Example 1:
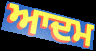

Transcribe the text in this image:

ਆਦਮ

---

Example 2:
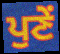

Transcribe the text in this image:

ਪੁਣੇਂ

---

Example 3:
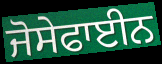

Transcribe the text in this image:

ਜੋਸੇਫਾਈਨ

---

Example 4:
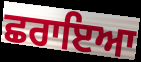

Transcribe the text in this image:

ਛਰਾਇਆ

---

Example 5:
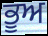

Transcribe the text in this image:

ਭੂਅ